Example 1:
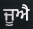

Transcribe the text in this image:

ਜੂਐ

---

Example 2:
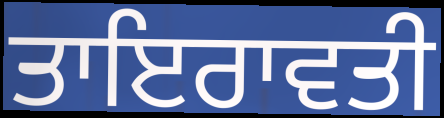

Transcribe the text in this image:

ਤਾਇਰਾਵਤੀ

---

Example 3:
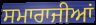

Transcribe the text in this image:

ਸਮਾਰਾਜੀਆਂ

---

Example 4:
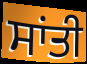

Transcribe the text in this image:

ਸਾਂਤੀ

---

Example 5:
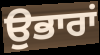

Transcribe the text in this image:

ਉਭਾਰਾਂ